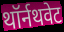
थॉर्नथवेट